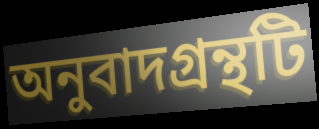
অনুবাদগ্রন্থটি